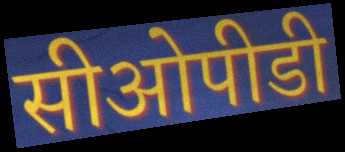
सीओपीडी